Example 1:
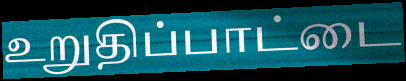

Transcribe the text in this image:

உறுதிப்பாட்டை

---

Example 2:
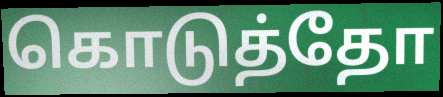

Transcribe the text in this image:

கொடுத்தோ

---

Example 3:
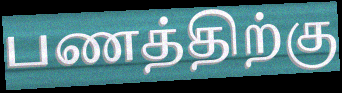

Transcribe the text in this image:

பணத்திற்கு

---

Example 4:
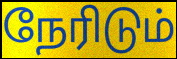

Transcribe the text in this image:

நேரிடும்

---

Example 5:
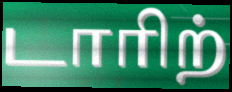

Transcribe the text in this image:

டாரிற்